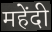
महेंदी